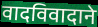
वादविवादाने